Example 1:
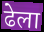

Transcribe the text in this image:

ढेला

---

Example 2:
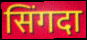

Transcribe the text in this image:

सिंगदा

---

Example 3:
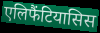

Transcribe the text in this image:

एलिफैंटियासिस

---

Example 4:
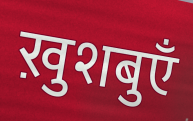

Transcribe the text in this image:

ख़ुशबुएँ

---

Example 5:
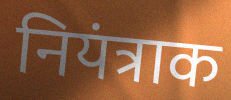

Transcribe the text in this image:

नियंत्राक